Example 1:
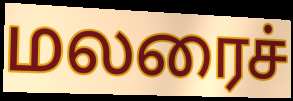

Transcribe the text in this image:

மலரைச்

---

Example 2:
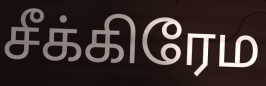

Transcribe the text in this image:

சீக்கிரேம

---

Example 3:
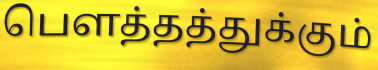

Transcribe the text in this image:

பௌத்தத்துக்கும்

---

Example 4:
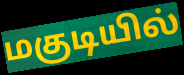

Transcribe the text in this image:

மகுடியில்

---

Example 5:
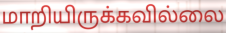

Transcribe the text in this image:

மாறியிருக்கவில்லை